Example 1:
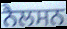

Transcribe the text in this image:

ਨੈਲਸਨ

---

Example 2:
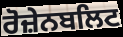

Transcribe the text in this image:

ਰੋਜ਼ੇਨਬਲਿਟ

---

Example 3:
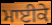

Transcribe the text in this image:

ਮਾਈਕੇ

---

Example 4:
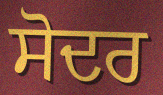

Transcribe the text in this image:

ਸੋਦਰ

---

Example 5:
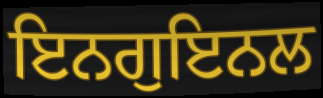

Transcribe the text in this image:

ਇਨਗੁਇਨਲ